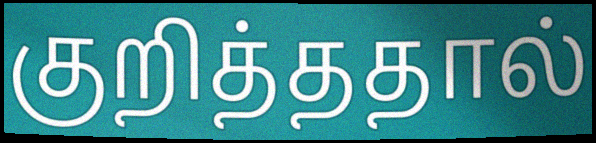
குறித்ததால்